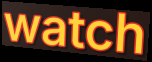
watch